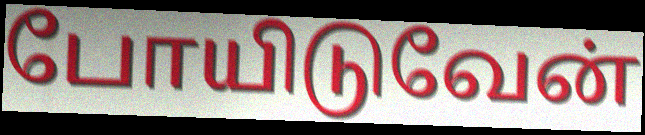
போயிடுவேன்